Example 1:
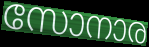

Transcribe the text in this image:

സോനാര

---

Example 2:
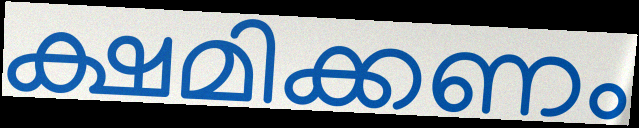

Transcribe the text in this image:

ക്ഷമിക്കണം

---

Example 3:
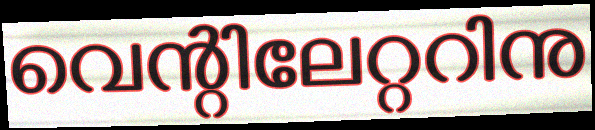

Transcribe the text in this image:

വെന്റിലേറ്ററിനു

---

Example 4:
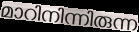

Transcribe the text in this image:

മാറിനിന്നിരുന്ന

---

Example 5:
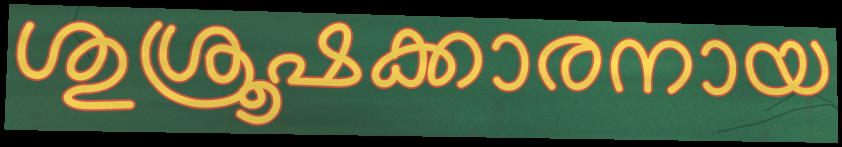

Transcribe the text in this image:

ശുശ്രൂഷക്കാരനായ